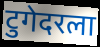
टुगेदरला